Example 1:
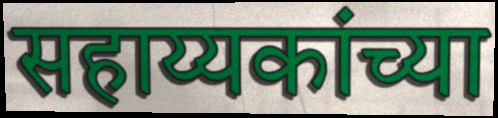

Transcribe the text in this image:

सहाय्यकांच्या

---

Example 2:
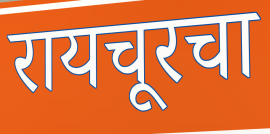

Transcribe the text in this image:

रायचूरचा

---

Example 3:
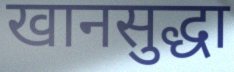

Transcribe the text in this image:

खानसुद्धा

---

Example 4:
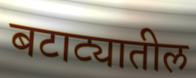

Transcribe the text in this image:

बटाट्यातील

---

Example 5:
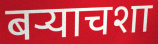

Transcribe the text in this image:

बर्‍याचशा